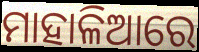
ମାହାଳିଆରେ